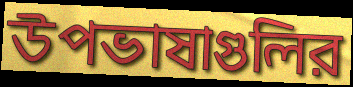
উপভাষাগুলির